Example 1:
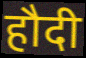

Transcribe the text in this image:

हौदी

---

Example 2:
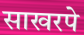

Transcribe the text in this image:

साखरपे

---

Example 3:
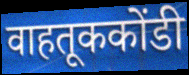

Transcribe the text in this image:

वाहतूककोंडी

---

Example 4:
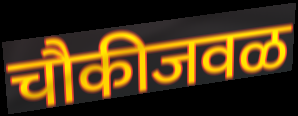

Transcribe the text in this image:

चौकीजवळ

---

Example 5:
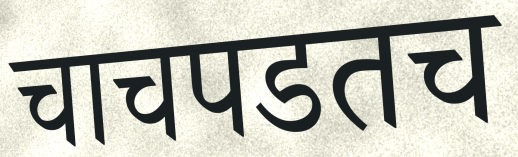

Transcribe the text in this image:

चाचपडतच